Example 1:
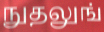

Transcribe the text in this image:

நுதலுங்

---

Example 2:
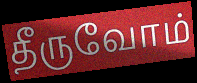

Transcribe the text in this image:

தீருவோம்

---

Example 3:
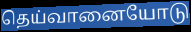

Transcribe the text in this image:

தெய்வானையோடு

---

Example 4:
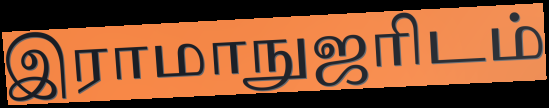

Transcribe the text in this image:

இராமாநுஜரிடம்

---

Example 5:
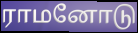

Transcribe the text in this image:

ராமனோடு